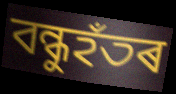
বন্ধুহঁতৰ